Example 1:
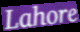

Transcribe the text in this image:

Lahore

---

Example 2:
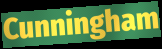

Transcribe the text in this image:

Cunningham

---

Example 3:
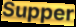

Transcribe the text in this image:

Supper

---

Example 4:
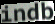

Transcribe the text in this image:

indb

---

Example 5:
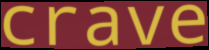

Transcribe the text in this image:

crave